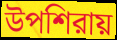
উপশিরায়